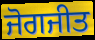
ਜੋਗਜੀਤ